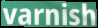
varnish